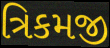
ત્રિકમજી